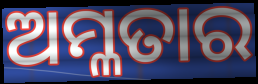
ଅମ୍ଳତାର